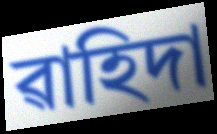
ৱাহিদা